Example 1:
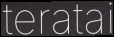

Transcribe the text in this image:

teratai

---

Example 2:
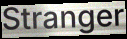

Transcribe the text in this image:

Stranger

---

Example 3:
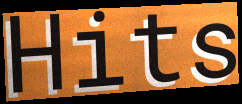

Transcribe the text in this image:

Hits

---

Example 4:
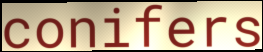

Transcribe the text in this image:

conifers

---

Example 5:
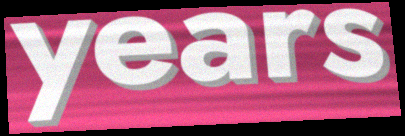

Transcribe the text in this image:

years